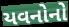
યવનોનો